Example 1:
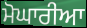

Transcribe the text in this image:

ਮੋਘਾਰੀਆ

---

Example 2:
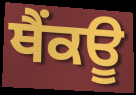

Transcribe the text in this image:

ਥੈਂਕਊ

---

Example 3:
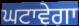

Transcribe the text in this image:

ਘਟਾਵੇਗਾ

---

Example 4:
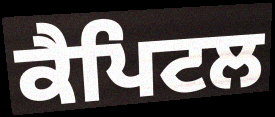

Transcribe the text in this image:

ਕੈਪਿਟਲ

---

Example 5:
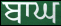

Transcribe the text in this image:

ਬਾਘ